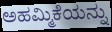
ಅಹಮ್ಮಿಕೆಯನ್ನು